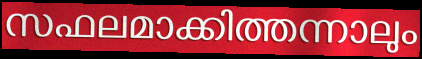
സഫലമാക്കിത്തന്നാലും